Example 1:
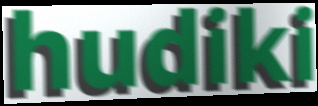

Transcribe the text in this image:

hudiki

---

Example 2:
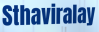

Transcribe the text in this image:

Sthaviralay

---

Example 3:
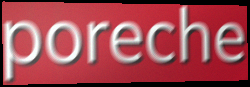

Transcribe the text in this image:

poreche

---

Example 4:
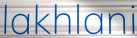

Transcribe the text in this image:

lakhlani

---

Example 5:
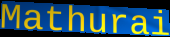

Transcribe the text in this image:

Mathurai